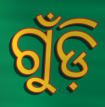
ଗୁଁଡ଼ି